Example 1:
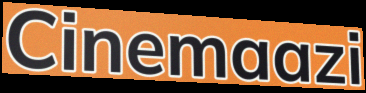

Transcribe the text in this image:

Cinemaazi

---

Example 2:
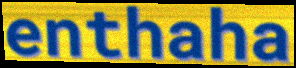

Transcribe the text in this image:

enthaha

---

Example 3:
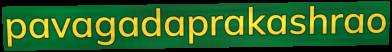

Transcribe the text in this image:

pavagadaprakashrao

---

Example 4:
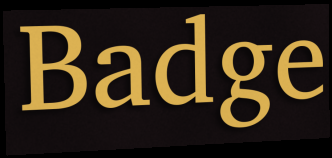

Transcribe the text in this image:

Badge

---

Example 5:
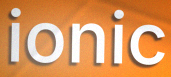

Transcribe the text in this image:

ionic